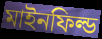
মাইনফিল্ড